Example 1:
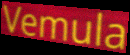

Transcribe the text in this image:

Vemula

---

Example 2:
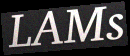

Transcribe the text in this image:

LAMs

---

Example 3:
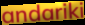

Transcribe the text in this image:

andariki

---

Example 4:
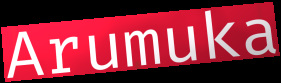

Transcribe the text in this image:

Arumuka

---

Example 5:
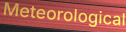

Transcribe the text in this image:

Meteorological